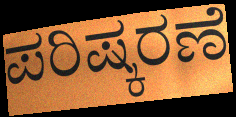
ಪರಿಷ್ಕರಣೆ